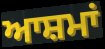
ਆਸ਼ਮਾਂ